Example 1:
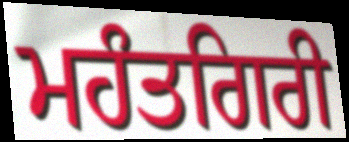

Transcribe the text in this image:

ਮਹੰਤਗਿਰੀ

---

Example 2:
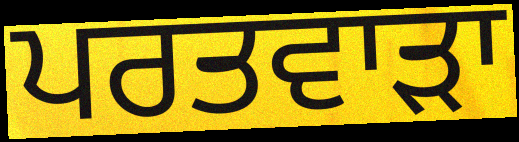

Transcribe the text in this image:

ਪਰਤਵਾੜਾ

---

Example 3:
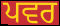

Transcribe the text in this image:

ਪਵਰ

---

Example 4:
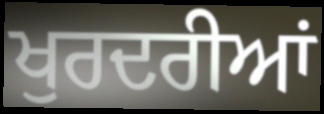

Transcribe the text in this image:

ਖੁਰਦਰੀਆਂ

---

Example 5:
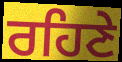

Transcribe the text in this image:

ਰਹਿਣੇ